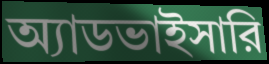
অ্যাডভাইসারি